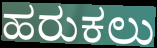
ಹರುಕಲು